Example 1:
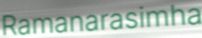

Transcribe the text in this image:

Ramanarasimha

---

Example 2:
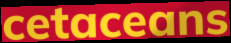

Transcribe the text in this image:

cetaceans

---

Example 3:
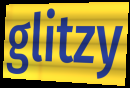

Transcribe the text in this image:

glitzy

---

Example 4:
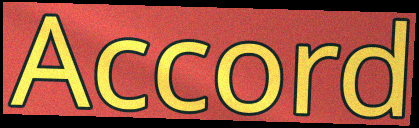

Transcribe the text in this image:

Accord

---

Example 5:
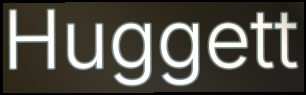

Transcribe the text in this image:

Huggett